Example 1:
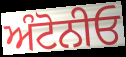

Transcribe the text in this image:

ਅੰਟੋਨੀਓ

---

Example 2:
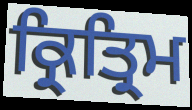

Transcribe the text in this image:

ਕ੍ਰਿਤ੍ਰਿਮ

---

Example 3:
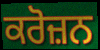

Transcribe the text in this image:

ਕਰੋਜ਼ਨ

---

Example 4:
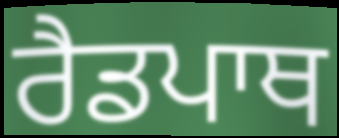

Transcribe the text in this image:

ਰੈਡਪਾਥ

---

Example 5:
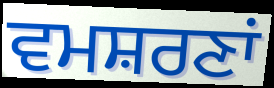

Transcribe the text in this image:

ਵਮਸ਼ਰਣਾਂ